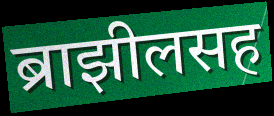
ब्राझीलसह